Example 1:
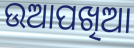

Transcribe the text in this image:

ଉଆପଖିଆ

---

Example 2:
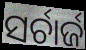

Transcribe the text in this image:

ସର୍ଚାର୍ଜ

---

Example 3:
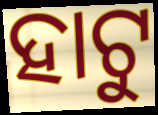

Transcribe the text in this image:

ହାଟୁ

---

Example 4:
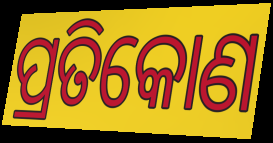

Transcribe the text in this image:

ପ୍ରତିକୋଣ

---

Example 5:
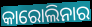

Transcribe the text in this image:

କାରୋଲିନାର